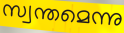
സ്വന്തമെന്നു